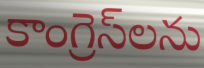
కాంగ్రెస్‌లను